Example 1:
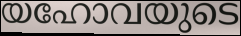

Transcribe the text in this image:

യഹോവയുടെ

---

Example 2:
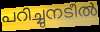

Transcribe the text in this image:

പറിച്ചുനടീൽ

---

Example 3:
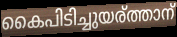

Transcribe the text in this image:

കൈപിടിച്ചുയര്ത്താന്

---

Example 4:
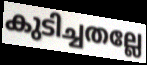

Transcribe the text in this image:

കുടിച്ചതല്ലേ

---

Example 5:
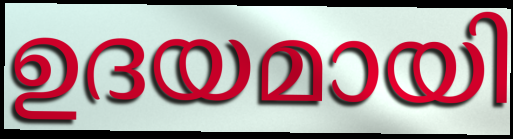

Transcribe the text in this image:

ഉദയമായി